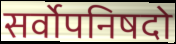
सर्वोपनिषदो